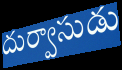
దుర్వాసుడు